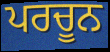
ਪਰਚੂਨ